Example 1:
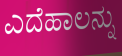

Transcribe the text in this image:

ಎದೆಹಾಲನ್ನು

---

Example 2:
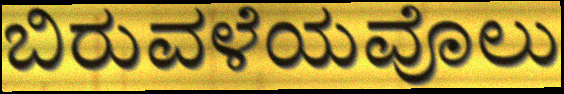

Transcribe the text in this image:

ಬಿರುವಳೆಯವೊಲು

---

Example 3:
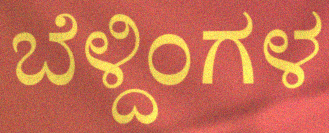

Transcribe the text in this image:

ಬೆಳ್ದಿಂಗಳ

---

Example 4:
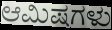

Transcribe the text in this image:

ಆಮಿಷಗಳು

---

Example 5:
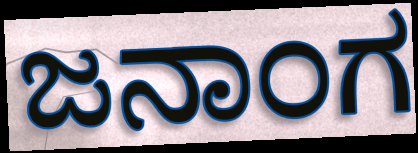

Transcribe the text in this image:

ಜನಾಂಗ